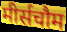
मीर्सचौम